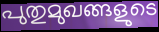
പുതുമുഖങ്ങളുടെ